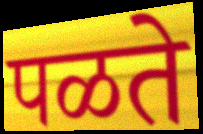
पळते